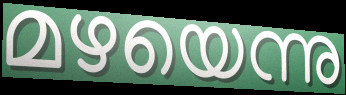
മഴയെന്നു